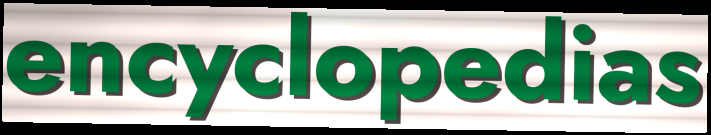
encyclopedias